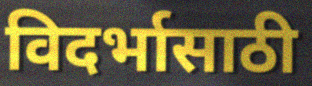
विदर्भासाठी